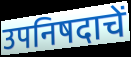
उपनिषदाचें